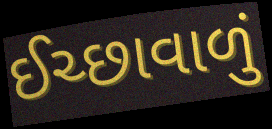
ઈચ્છાવાળું